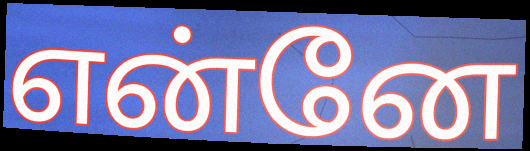
என்னே